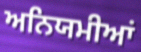
ਅਨਿਯਮੀਆਂ